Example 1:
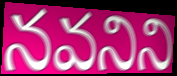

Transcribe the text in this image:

నవనిని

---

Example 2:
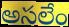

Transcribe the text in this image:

అసలేం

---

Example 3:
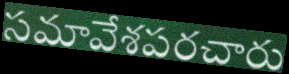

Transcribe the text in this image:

సమావేశపరచారు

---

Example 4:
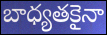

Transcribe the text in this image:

బాధ్యతకైనా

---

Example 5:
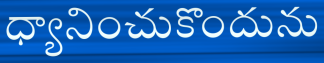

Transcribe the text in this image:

ధ్యానించుకొందును